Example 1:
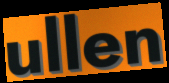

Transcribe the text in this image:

ullen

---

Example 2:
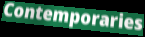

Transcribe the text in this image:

Contemporaries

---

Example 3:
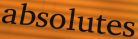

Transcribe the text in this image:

absolutes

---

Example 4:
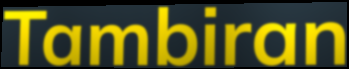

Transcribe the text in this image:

Tambiran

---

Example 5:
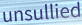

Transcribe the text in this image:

unsullied